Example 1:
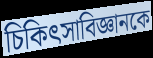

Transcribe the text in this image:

চিকিৎসাবিজ্ঞানকে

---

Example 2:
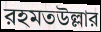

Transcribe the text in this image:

রহমতউল্লার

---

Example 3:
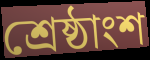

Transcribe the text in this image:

শ্রেষ্ঠাংশ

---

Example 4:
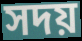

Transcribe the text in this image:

সদয়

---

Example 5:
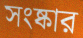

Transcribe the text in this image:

সংষ্কার